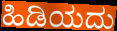
ಹಿಡಿಯದು